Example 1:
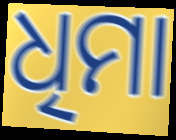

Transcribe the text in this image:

ଧିମା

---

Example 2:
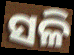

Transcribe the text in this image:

ସଳି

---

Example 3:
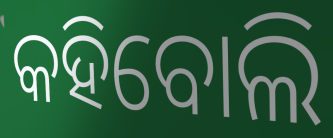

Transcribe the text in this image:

କହିବୋଲି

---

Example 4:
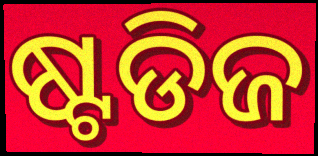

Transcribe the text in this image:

ଷ୍ଟଡିଜ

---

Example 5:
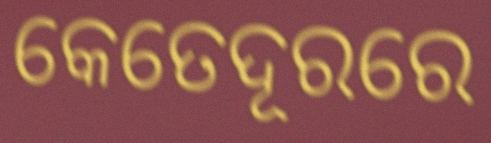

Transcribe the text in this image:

କେତେଦୂରରେ